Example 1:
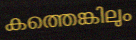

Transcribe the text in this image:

കത്തെങ്കിലും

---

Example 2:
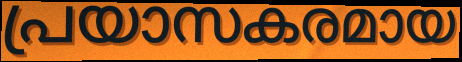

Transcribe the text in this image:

പ്രയാസകരമായ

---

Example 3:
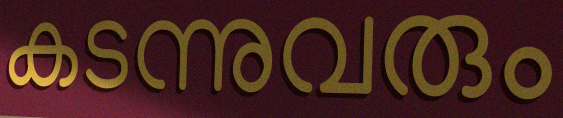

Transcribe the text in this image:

കടന്നുവരും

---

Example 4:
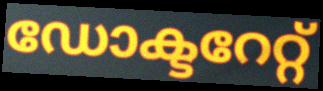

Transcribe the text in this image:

ഡോക്ടറേറ്റ്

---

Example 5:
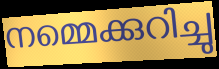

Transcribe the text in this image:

നമ്മെക്കുറിച്ചു